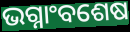
ଭଗ୍ନାଂବଶେଷ